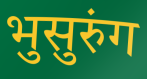
भुसुरुंग